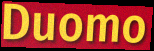
Duomo